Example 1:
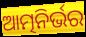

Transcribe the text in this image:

ଆତ୍ମନିର୍ଭର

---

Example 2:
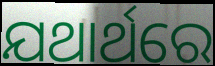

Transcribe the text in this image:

ଯଥାର୍ଥରେ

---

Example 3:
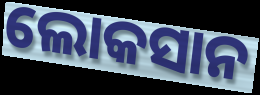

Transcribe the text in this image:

ଲୋକସାନ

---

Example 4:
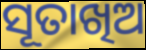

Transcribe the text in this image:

ସୂତାଖିଅ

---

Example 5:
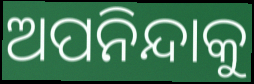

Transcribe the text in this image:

ଅପନିନ୍ଦାକୁ